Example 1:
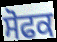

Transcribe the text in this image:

ਸੋਫਕ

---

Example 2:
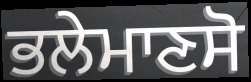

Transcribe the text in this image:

ਭਲੇਮਾਣਸੋ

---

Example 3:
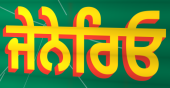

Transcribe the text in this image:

ਜੇਨੇਰਿਓ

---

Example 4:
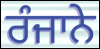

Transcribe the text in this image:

ਰੰਜਾਨੇ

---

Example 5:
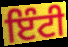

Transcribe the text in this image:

ਇੰਟੀ